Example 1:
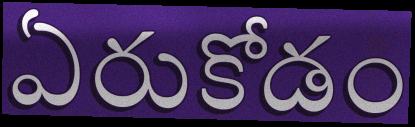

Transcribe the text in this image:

ఏరుకోడం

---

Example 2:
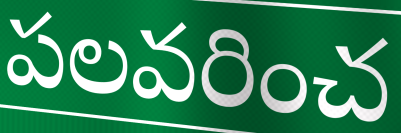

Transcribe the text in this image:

పలవరించ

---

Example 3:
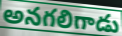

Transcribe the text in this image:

అనగలిగాడు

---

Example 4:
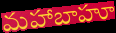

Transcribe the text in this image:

మహాబాహూ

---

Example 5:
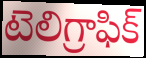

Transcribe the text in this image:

టెలిగ్రాఫిక్